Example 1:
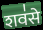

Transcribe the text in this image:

शव॑से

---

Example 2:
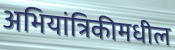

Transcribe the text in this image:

अभियांत्रिकीमधील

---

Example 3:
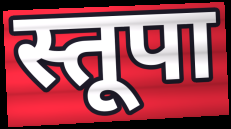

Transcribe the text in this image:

स्तूपा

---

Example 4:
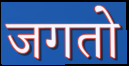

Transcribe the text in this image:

जगतो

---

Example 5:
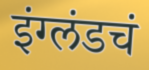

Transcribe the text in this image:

इंग्लंडचं